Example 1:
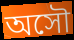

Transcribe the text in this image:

অসৌ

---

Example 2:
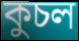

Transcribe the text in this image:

কুচল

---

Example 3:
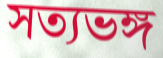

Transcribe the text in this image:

সত্যভঙ্গ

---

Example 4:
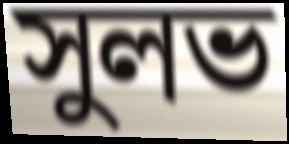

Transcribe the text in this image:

সুলভ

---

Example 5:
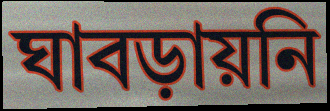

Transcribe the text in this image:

ঘাবড়ায়নি